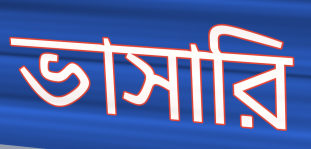
ভাসারি